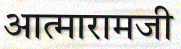
आत्मारामजी